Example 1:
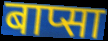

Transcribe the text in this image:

बाप्सा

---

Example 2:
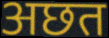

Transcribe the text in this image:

अछत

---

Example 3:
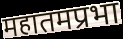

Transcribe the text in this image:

महातमप्रभा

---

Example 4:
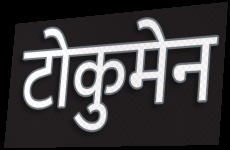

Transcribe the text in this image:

टोकुमेन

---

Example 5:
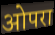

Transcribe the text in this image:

ओपरा